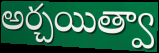
అర్చయిత్వా